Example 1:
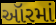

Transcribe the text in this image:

ઑરમાં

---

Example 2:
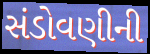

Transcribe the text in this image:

સંડોવણીની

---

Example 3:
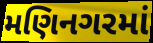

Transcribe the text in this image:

મણિનગરમાં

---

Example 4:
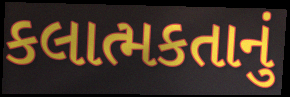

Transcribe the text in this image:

કલાત્મકતાનું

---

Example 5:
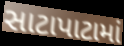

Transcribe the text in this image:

સાટાપાટામાં